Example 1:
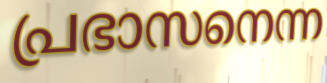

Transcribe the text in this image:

പ്രഭാസനെന്ന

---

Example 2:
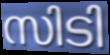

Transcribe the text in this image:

സിടി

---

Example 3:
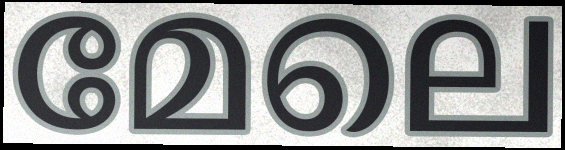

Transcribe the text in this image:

മേലെ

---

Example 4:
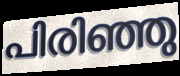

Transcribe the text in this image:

പിരിഞ്ഞു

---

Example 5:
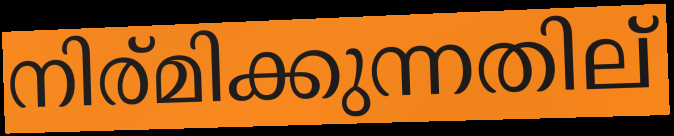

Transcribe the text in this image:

നിര്മിക്കുന്നതില്